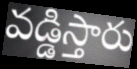
వడ్డిస్తారు